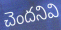
చెందనివి